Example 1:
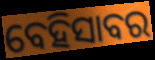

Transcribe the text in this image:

ବେହିସାବର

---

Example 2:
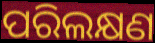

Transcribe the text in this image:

ପରିଲକ୍ଷଣ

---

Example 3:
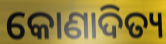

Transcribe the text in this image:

କୋଣାଦିତ୍ୟ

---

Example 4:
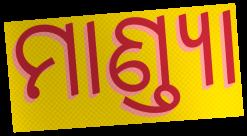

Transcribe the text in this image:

ମାଣ୍ଡ୍ୟା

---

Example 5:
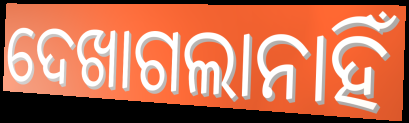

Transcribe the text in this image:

ଦେଖାଗଲାନାହିଁ